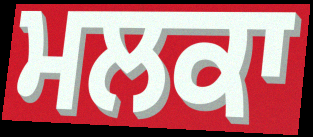
ਮਲਕਾ